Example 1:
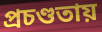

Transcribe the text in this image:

প্রচণ্ডতায়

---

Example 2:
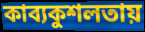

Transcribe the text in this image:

কাব্যকুশলতায়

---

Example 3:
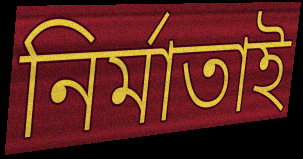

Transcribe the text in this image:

নির্মাতাই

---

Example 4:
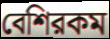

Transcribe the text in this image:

বেশিরকম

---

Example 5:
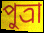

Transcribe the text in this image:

পুত্রা